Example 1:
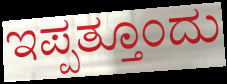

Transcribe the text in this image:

ಇಪ್ಪತ್ತೂಂದು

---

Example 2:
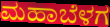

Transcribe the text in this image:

ಮಹಾಬೆಳಗ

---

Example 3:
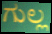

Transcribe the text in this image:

ಗುಲ್ಲ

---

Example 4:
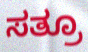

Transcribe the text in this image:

ಸತ್ರೂ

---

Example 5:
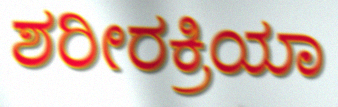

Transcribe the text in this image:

ಶರೀರಕ್ರಿಯಾ